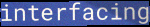
interfacing